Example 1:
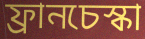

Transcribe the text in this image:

ফ্রানচেস্কা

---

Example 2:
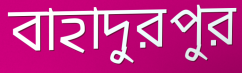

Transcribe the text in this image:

বাহাদুরপুর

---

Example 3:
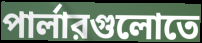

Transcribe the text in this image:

পার্লারগুলোতে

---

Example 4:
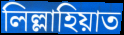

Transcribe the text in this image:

লিল্লাহিয়াত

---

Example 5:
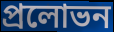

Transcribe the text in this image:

প্রলোভন